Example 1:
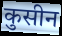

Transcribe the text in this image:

कुसीन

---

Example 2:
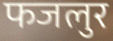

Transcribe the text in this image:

फजलुर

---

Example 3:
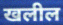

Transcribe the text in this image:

खलील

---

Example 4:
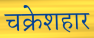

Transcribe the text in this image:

चक्रेशहार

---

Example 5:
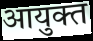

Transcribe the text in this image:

आयुक्‍त